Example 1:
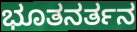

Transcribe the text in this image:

ಭೂತನರ್ತನ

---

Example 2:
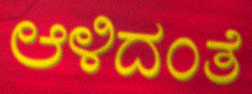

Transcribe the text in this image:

ಆಳಿದಂತೆ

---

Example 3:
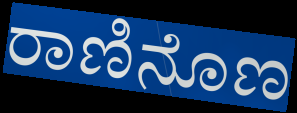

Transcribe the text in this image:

ರಾಣಿನೊಣ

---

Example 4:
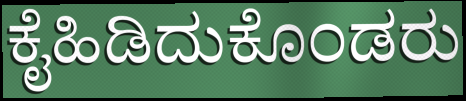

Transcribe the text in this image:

ಕೈಹಿಡಿದುಕೊಂಡರು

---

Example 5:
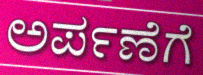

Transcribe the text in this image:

ಅರ್ಪಣೆಗೆ